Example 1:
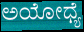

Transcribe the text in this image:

ಅಯೋಧ್ಯೆ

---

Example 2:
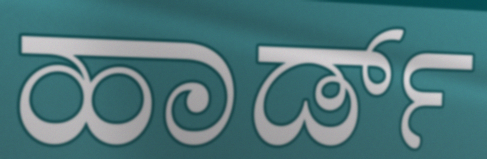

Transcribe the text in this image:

ಹಾರ್ಡ್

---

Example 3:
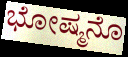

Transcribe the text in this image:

ಭೋಷ್ಮನೊ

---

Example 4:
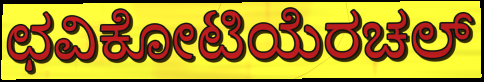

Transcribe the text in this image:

ಛವಿಕೋಟಿಯೆರಚಲ್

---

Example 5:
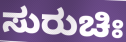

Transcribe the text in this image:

ಸುರುಚಿಃ